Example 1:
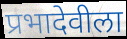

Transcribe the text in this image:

प्रभादेवीला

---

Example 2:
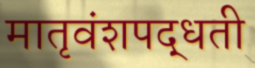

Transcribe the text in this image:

मातृवंशपद्धती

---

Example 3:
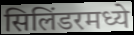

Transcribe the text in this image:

सिलिंडरमध्ये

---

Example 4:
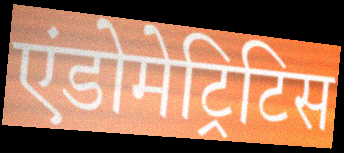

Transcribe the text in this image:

एंडोमेट्रिटिस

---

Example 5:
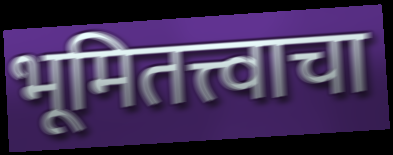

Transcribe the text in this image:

भूमितत्त्वाचा